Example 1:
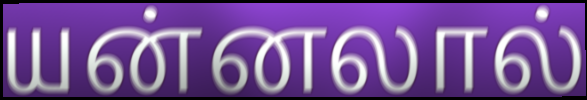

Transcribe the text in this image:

யன்னலால்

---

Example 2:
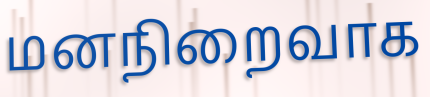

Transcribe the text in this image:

மனநிறைவாக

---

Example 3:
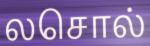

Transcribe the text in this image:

லசொல்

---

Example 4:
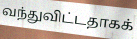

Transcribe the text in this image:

வந்துவிட்டதாகக்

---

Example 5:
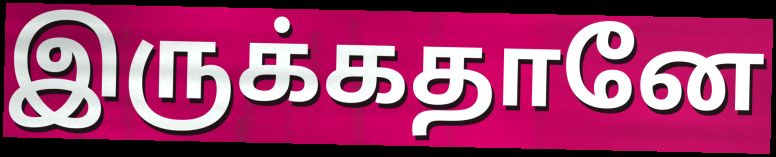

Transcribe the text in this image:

இருக்கதானே